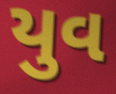
યુવ